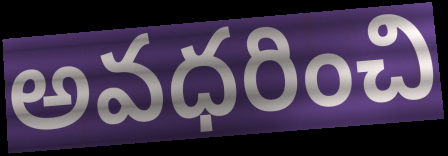
అవధరించి